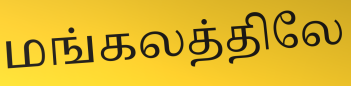
மங்கலத்திலே